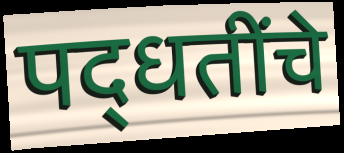
पद्धतींचे